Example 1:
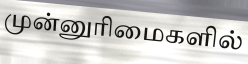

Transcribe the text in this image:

முன்னுரிமைகளில்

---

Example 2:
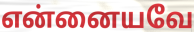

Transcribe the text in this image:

என்னையவே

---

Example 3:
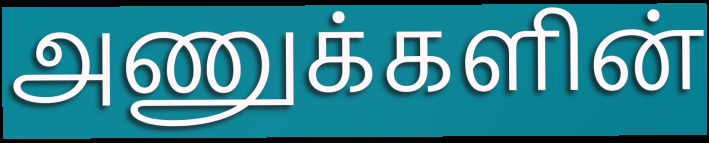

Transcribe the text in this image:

அணுக்களின்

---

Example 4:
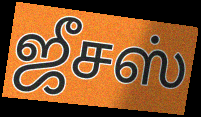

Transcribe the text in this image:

ஜீசஸ்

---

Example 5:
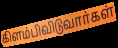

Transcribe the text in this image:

கிளம்பிவிடுவார்கள்